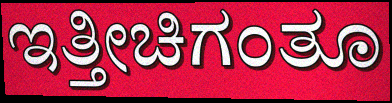
ಇತ್ತೀಚಿಗಂತೂ